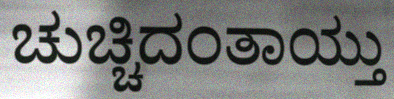
ಚುಚ್ಚಿದಂತಾಯ್ತು